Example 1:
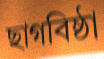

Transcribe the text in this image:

ছাগবিষ্ঠা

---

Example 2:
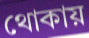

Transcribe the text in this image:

থোকায়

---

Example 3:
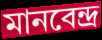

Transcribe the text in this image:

মানবেন্দ্র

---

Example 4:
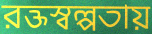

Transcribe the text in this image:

রক্তস্বল্পতায়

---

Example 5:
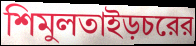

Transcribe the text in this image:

শিমুলতাইড়চরের